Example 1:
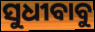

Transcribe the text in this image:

ସୁଧୀବାବୁ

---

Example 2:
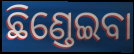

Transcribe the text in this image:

ଛିଣ୍ଡେଇବା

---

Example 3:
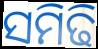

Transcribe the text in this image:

ସମିଢି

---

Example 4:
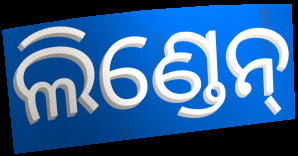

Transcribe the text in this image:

ଲିଣ୍ଡେନ୍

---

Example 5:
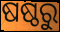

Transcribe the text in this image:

ଷଷ୍ଠରୁ